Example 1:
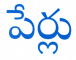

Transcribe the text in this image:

పేర్లు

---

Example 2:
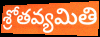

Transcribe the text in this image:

శ్రోతవ్యమితి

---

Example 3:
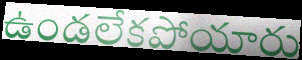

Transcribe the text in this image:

ఉండలేకపోయారు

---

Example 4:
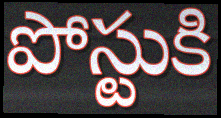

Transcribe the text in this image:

పోస్టుకి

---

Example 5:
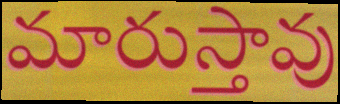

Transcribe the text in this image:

మారుస్తావు